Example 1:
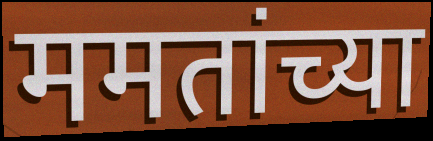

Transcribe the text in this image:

ममतांच्या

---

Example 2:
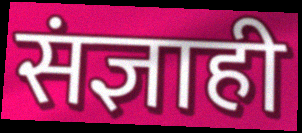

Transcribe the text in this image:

संज्ञाही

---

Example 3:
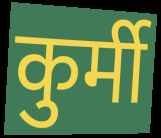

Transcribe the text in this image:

कुर्मी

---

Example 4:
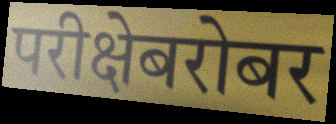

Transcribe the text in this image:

परीक्षेबरोबर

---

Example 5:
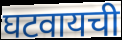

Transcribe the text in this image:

घटवायची